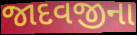
જાદવજીના